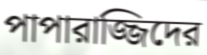
পাপারাজ্জিদের